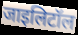
जाइलिटॉल